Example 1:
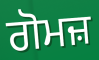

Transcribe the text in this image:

ਗੋਮਜ਼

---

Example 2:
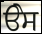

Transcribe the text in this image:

ੳੇਸ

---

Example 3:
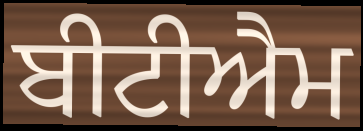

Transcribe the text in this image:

ਬੀਟੀਐਮ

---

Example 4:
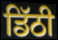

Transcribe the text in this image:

ਡਿੱਠੀ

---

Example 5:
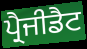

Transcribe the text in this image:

ਪ੍ਰੈਜੀਡੈਟ